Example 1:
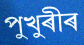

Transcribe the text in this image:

পুখুৰীৰ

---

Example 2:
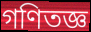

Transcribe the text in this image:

গণিতজ্ঞ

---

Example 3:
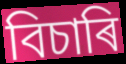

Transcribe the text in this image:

বিচাৰি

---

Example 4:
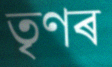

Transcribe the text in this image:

তৃণৰ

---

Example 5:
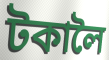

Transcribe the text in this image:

টকালৈ